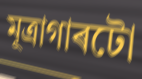
মূত্ৰাগাৰটো